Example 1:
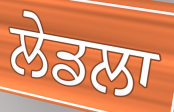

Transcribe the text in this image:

ਲੇਡਲਾ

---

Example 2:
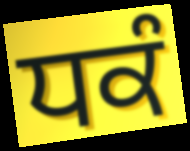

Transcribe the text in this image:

ਧਕੰ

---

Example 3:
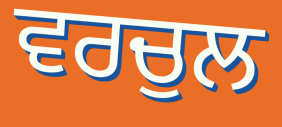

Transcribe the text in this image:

ਵਰਚੁਲ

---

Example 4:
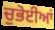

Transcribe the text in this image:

ਚੁਭੋਈਆਂ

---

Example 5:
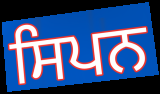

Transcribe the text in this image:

ਸਿਪਨ